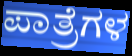
ಪಾತ್ರೆಗಳ